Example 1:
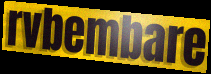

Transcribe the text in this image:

rvbembare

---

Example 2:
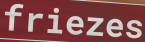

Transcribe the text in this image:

friezes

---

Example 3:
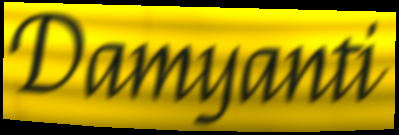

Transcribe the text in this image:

Damyanti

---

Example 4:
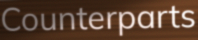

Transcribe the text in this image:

Counterparts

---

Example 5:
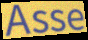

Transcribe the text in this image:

Asse